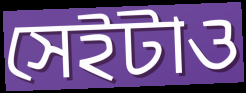
সেইটাও